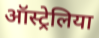
ऑस्ट्रेलिया